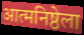
आत्मनिष्ठेला